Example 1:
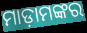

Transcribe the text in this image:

ମାଡ଼ାମଙ୍କର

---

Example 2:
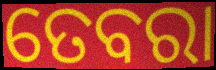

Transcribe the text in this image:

ତେବରା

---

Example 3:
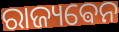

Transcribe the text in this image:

ରାଜ୍ୟଵେନ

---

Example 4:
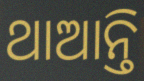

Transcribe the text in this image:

ଥାଆନ୍ତି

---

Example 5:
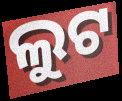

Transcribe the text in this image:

ଲୁଟ